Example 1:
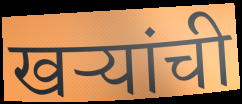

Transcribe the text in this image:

खऱ्यांची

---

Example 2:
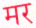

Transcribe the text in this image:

मर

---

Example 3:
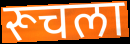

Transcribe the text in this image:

रूचला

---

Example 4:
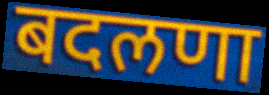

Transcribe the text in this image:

बदलणा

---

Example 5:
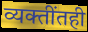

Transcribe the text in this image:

व्यक्तींतही